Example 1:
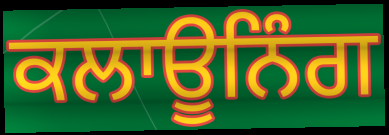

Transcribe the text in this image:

ਕਲਾਊਨਿੰਗ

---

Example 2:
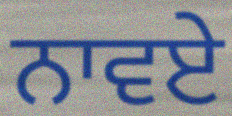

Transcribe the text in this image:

ਨਾਵਏ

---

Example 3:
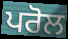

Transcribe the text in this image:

ਪਰੋਲ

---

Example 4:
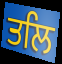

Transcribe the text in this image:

ਤਲਿ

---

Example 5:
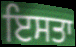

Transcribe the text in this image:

ਇਸਤਾ